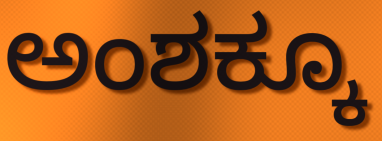
ಅಂಶಕ್ಕೂ